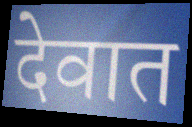
देवात